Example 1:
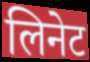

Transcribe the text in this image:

लिनेट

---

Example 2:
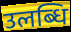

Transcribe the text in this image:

उलब्धि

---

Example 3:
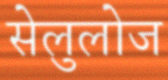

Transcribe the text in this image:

सेलुलोज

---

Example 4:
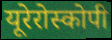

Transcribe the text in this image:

यूरेरोस्कोपी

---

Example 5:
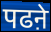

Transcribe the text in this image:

पढऩे